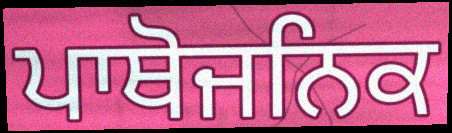
ਪਾਥੋਜਨਿਕ